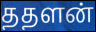
ததளன்